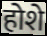
होशे